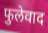
फुलेवाद